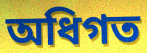
অধিগত